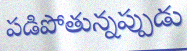
పడిపోతున్నప్పుడు